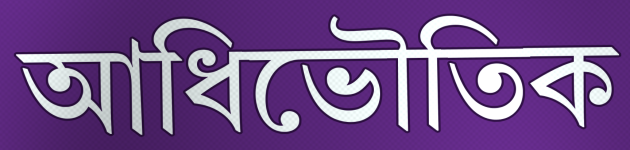
আধিভৌতিক